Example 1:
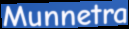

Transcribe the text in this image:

Munnetra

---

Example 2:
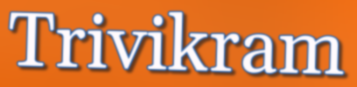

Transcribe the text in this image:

Trivikram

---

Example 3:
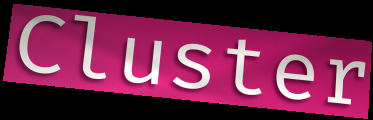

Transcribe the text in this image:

Cluster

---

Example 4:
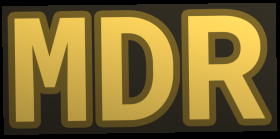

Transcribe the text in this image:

MDR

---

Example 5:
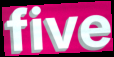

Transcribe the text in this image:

five